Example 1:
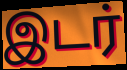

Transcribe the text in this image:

இடர்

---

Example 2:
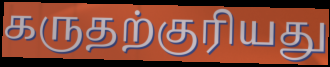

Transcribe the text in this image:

கருதற்குரியது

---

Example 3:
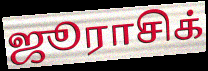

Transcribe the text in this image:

ஜூராசிக்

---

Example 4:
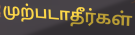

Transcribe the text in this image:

முற்படாதீர்கள்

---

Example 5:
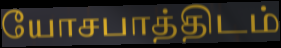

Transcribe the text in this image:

யோசபாத்திடம்